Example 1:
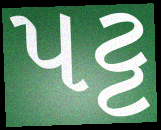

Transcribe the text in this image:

પટ્ટ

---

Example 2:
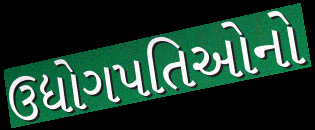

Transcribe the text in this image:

ઉદ્યોગપતિઓનો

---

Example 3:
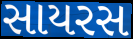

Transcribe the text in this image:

સાયરસ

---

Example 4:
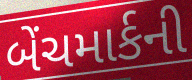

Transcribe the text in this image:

બેંચમાર્કની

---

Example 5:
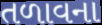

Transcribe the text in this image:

તળાવના